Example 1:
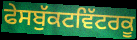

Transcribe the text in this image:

ਫੇਸਬੁੱਕਟਵਿੱਟਰਕੂ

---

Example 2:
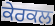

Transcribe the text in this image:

ਕੇਰਕਲ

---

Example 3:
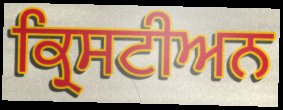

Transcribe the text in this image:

ਕ੍ਰਿਸਟੀਅਨ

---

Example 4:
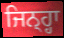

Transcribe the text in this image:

ਜਿਨ੍ਹ੍ਹਾ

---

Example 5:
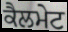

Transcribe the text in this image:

ਕੈਲਮੇਟ